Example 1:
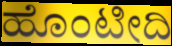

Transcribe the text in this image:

ಹೊಂಟೀದಿ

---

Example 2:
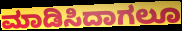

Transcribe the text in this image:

ಮಾಡಿಸಿದಾಗಲೂ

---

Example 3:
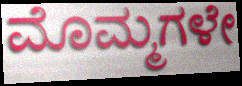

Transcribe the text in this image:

ಮೊಮ್ಮಗಳೇ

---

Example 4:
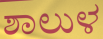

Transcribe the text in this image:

ಶಾಲುಳ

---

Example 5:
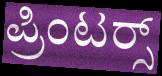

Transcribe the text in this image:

ಪ್ರಿಂಟರ‍್ಸ್